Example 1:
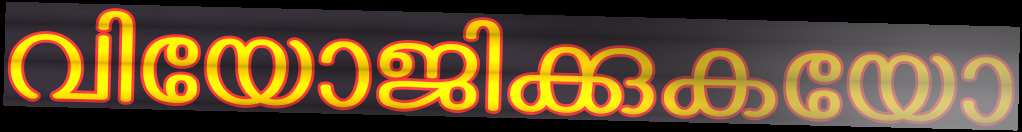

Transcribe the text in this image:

വിയോജിക്കുകയോ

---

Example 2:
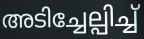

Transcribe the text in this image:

അടിച്ചേല്പിച്ച്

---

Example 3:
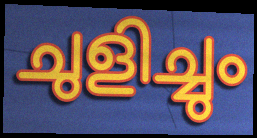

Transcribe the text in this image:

ചുളിച്ചും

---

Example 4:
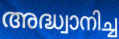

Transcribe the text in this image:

അദ്ധ്വാനിച്ച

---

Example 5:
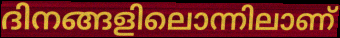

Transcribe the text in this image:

ദിനങ്ങളിലൊന്നിലാണ്